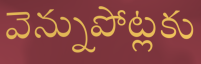
వెన్నుపోట్లకు